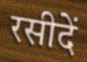
रसीदें